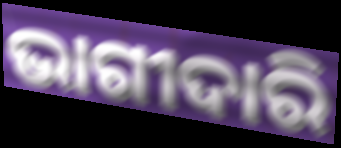
ଭାଗୀଦାରି